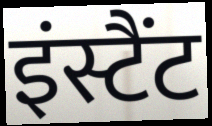
इंस्टैंट